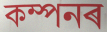
কম্পনৰ